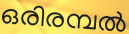
ഒരിരമ്പൽ